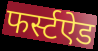
फर्स्टऐड